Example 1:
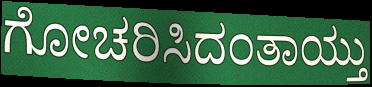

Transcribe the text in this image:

ಗೋಚರಿಸಿದಂತಾಯ್ತು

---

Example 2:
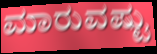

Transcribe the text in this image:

ಮಾರುವಷ್ಟು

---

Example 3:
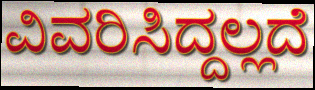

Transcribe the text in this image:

ವಿವರಿಸಿದ್ದಲ್ಲದೆ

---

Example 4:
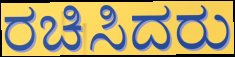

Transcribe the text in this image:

ರಚಿಸಿದರು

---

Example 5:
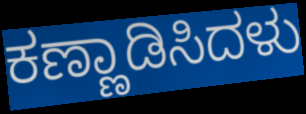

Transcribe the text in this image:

ಕಣ್ಣಾಡಿಸಿದಳು